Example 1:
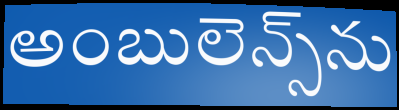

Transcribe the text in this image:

అంబులెన్స్‌ను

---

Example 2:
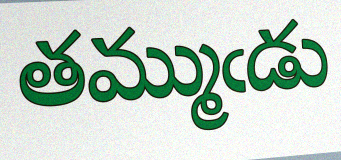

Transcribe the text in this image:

తమ్ముఁడు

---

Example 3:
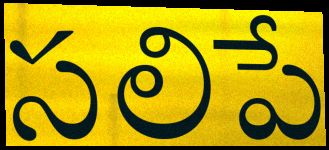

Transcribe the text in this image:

సలిపే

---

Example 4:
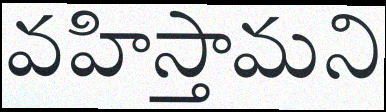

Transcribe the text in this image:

వహిస్తామని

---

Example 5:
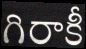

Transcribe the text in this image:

గిరాకీ